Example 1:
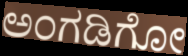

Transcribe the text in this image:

ಅಂಗಡಿಗೋ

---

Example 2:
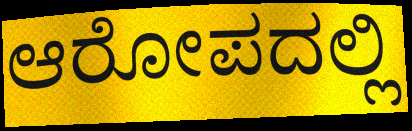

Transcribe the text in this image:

ಆರೋಪದಲ್ಲಿ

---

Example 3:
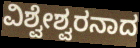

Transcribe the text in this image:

ವಿಶ್ವೇಶ್ವರನಾದ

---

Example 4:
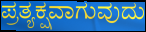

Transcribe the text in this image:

ಪ್ರತ್ಯಕ್ಷವಾಗುವುದು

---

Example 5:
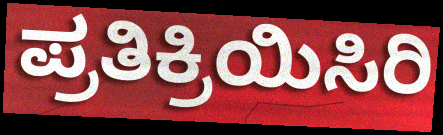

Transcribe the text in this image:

ಪ್ರತಿಕ್ರಿಯಿಸಿರಿ